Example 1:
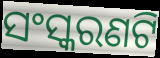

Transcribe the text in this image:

ସଂସ୍କରଣଟି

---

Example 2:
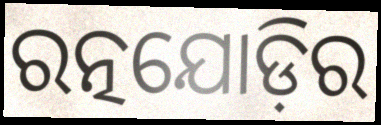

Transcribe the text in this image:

ରତ୍ନଯୋଡ଼ିର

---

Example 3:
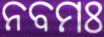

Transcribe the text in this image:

ନବମଃ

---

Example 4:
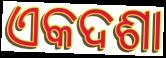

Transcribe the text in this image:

ଏକଦଶା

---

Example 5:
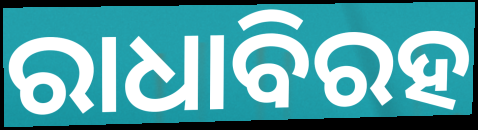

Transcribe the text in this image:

ରାଧାବିରହ